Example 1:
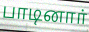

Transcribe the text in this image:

பாடினார்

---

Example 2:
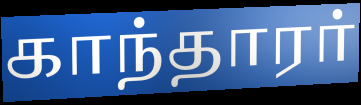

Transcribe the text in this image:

காந்தாரர்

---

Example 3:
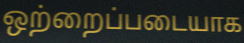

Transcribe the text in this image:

ஒற்றைப்படையாக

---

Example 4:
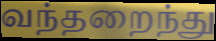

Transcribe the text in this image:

வந்தறைந்து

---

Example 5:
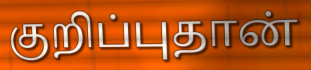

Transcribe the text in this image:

குறிப்புதான்